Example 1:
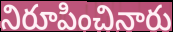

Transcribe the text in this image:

నిరూపించినారు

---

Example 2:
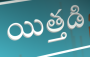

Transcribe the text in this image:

యిత్తడి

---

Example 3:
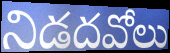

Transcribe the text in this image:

నిడదవోలు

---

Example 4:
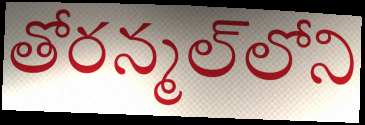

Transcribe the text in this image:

తోరన్మల్‌లోని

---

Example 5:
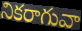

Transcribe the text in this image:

నికరాగువా